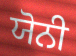
ਯੋਨੀ